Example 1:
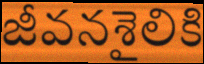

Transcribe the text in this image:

జీవనశైలికి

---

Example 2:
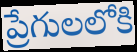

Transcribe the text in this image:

ప్రేగులలోకి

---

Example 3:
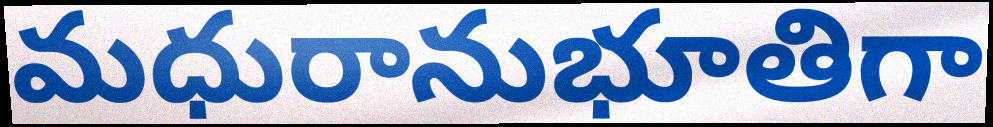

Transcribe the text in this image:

మధురానుభూతిగా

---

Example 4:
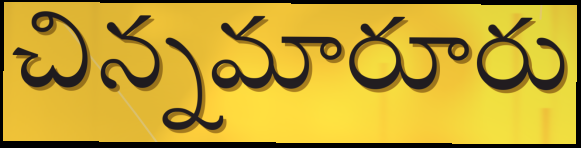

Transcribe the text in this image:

చిన్నమారూరు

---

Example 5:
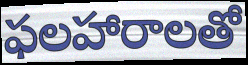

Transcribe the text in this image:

ఫలహారాలతో